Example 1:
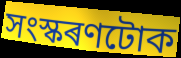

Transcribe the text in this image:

সংস্কৰণটোক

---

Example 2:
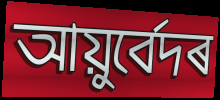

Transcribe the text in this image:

আয়ুৰ্বেদৰ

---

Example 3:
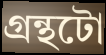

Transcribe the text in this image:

গ্ৰন্থটো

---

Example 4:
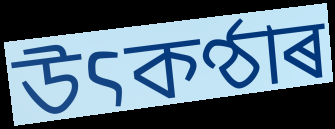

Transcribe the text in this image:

উৎকণ্ঠাৰ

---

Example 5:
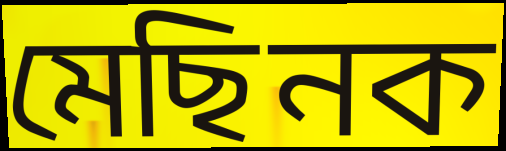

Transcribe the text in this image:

মেছিনক